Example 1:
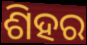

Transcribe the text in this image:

ଶିହର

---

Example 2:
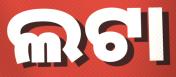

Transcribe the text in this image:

ଲଟା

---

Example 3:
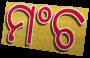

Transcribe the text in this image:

ମଂଚ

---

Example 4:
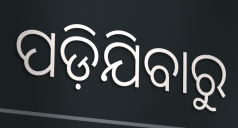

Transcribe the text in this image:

ପଡ଼ିଯିବାରୁ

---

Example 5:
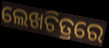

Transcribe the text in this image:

ଲେଖଚିତ୍ରରେ